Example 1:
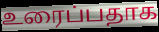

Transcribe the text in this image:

உரைப்பதாக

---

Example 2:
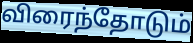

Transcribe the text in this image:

விரைந்தோடும்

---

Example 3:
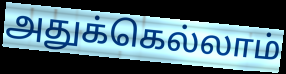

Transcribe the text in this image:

அதுக்கெல்லாம்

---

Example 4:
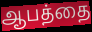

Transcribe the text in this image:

ஆபத்தை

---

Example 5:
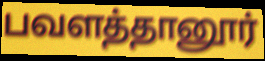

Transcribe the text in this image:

பவளத்தானூர்